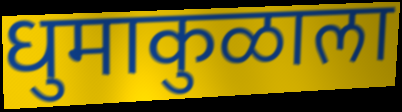
धुमाकुळाला